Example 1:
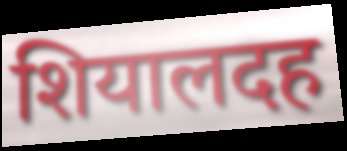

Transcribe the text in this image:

शियालदह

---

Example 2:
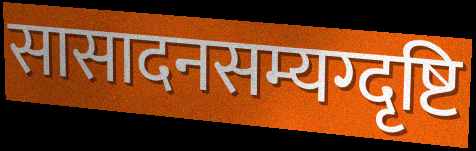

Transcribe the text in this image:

सासादनसम्यग्दृष्टि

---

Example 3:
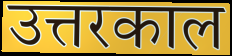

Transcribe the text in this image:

उत्तरकाल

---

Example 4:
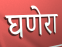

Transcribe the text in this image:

घणेरा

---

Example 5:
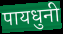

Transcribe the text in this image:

पायधुनी